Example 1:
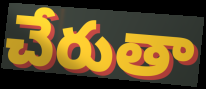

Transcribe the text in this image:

చేరుతా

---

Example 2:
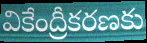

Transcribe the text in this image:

వికేంద్రీకరణకు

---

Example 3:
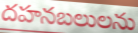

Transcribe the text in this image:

దహనబలులను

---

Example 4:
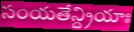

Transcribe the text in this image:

సంయతేన్ద్రియాః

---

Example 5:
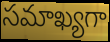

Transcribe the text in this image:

సమాఖ్యగా